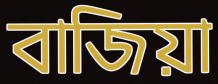
বাজিয়া